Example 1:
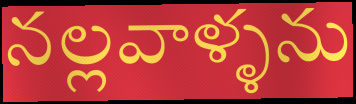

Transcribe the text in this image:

నల్లవాళ్ళను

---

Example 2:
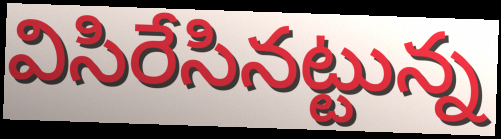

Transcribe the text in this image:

విసిరేసినట్టున్న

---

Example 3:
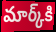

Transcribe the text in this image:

మార్క్‌కి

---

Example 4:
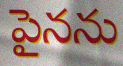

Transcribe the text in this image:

పైనను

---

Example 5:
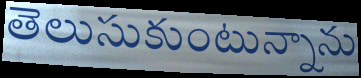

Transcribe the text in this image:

తెలుసుకుంటున్నాను